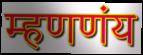
म्हणणंय